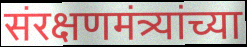
संरक्षणमंत्र्यांच्या